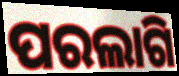
ପରଲାଗି